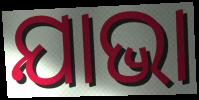
ଯାଭା